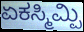
ಏಕಸ್ಮಿಮ್ಪಿ